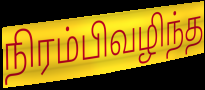
நிரம்பிவழிந்த